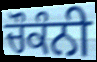
ਚੌਕੰਨੀ